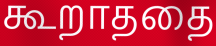
கூறாததை